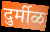
दुर्मीळ